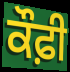
ਕੌਫ਼ੀ